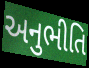
અનુભીતિ